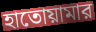
হাতোয়ামার